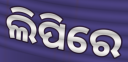
ଲିପିରେ